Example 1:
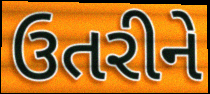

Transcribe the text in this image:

ઉતરીને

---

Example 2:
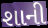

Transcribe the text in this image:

શાની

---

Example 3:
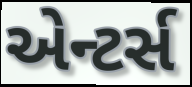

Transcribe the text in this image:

એન્ટર્સ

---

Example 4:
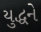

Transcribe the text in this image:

યુદ્ધને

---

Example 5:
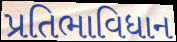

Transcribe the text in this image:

પ્રતિભાવિધાન